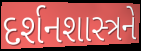
દર્શનશાસ્ત્રને